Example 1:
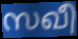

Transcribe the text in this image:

സഖീ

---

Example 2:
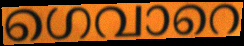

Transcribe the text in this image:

ഗെവാറെ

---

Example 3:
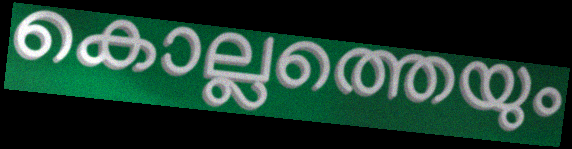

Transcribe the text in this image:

കൊല്ലത്തെയും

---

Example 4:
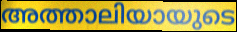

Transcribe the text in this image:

അത്താലിയായുടെ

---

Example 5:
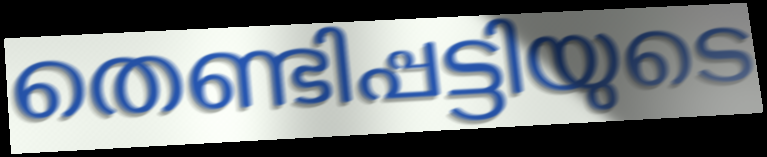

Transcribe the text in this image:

തെണ്ടിപ്പട്ടിയുടെ